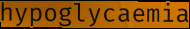
hypoglycaemia